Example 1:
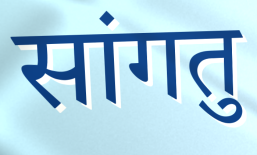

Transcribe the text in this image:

सांगतु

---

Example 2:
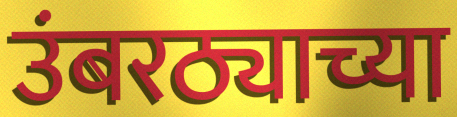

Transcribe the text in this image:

उंबरठ्याच्या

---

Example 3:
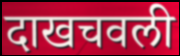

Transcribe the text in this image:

दाखचवली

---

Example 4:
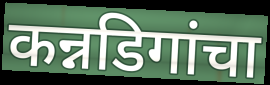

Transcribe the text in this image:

कन्नडिगांचा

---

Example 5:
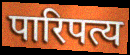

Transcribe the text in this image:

पारिपत्य